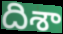
దిశా